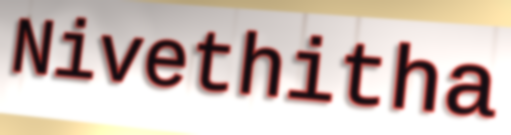
Nivethitha